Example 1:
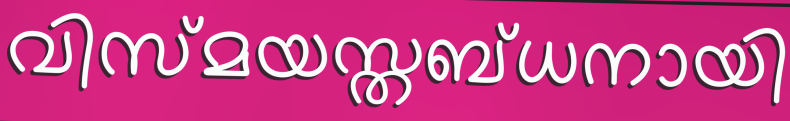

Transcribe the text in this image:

വിസ്മയസ്തബ്ധനായി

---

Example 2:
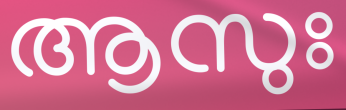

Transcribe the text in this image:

ആസുഃ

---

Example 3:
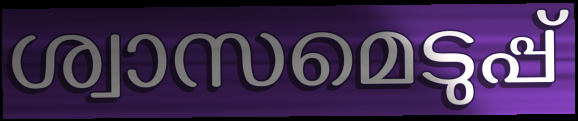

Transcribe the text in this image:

ശ്വാസമെടുപ്പ്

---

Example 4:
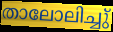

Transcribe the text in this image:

താലോലിച്ചു്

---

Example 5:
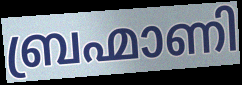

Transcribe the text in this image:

ബ്രഹ്മാണി